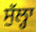
ਸੁੱਲ੍ਹਾ